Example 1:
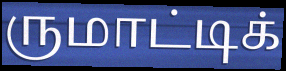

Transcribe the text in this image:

ருமாட்டிக்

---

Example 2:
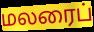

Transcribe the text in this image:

மலரைப்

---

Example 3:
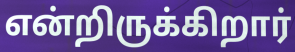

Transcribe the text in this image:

என்றிருக்கிறார்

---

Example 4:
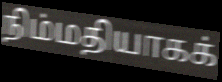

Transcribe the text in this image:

நிம்மதியாகக்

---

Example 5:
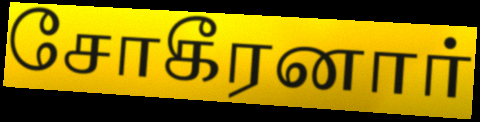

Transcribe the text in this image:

சோகீரனார்